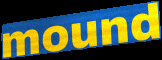
mound